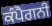
ਕੰਪੈਗਨੀ